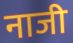
नाजी